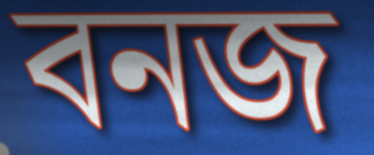
বনজ